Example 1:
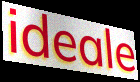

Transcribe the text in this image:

ideale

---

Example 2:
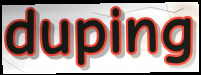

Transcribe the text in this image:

duping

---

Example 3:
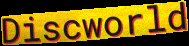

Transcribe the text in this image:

Discworld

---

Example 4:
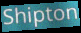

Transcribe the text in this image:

Shipton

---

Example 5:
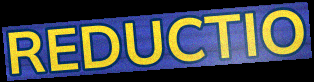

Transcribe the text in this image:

REDUCTIO